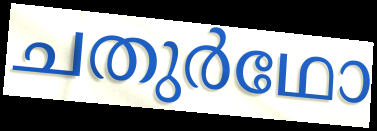
ചതുർഥോ